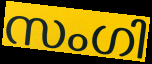
സംഗി